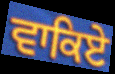
ਵਾਕਿਏ